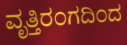
ವೃತ್ತಿರಂಗದಿಂದ